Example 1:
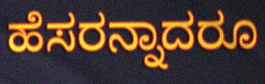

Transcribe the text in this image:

ಹೆಸರನ್ನಾದರೂ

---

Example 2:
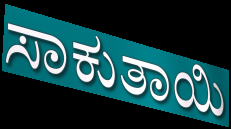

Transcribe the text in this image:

ಸಾಕುತಾಯಿ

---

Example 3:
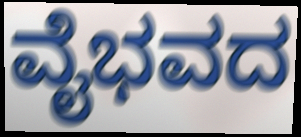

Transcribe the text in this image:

ವೈಭವದ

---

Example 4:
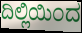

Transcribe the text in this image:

ದಿಲ್ಲಿಯಿಂದ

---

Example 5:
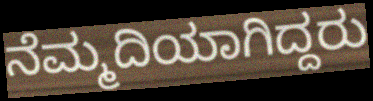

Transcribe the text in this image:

ನೆಮ್ಮದಿಯಾಗಿದ್ದರು